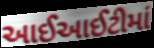
આઈઆઈટીમાં